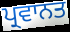
ਪ੍ਰਵਾਨਤ